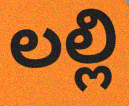
లల్లి